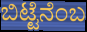
ಬಿಟ್ಟೆನೆಂಬ